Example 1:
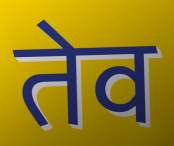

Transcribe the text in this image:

तेव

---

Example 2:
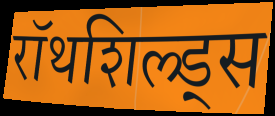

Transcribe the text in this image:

रॉथशिल्ड्स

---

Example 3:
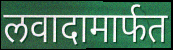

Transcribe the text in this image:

लवादामार्फत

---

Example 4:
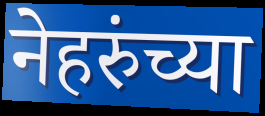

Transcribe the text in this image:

नेहरुंच्या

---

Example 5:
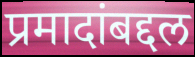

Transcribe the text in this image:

प्रमादांबद्दल